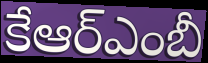
కేఆర్ఎంబీ